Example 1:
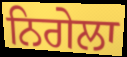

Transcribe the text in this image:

ਨਿਗੇਲਾ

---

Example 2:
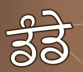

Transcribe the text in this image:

ਡੰਡੇ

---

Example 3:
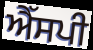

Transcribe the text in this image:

ਐੱਸਪੀ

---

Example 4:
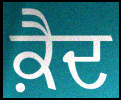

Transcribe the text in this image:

ਕ਼ੈਦ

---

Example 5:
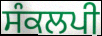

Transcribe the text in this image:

ਸੰਕਲਪੀ